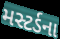
મસ્ટર્ડના